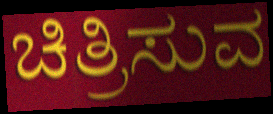
ಚಿತ್ರಿಸುವ